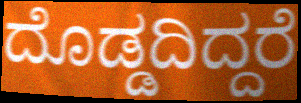
ದೊಡ್ಡದಿದ್ದರೆ